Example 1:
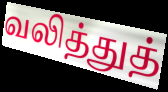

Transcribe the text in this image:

வலித்துத்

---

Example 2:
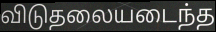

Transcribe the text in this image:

விடுதலையடைந்த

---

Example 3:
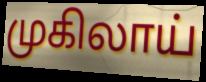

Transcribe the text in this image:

முகிலாய்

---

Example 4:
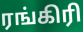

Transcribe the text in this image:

ரங்கிரி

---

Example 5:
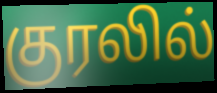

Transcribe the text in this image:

குரலில்